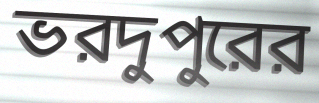
ভরদুপুরের